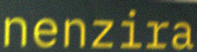
nenzira